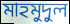
মাহমুদুল